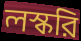
লস্করি